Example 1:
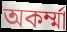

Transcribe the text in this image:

অকর্ম্মা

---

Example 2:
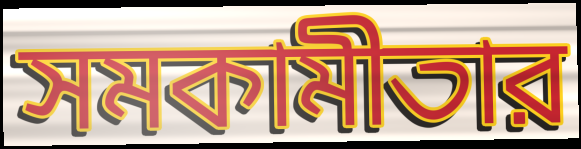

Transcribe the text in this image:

সমকামীতার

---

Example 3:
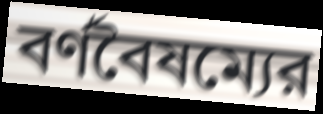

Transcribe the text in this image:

বর্ণবৈষম্যের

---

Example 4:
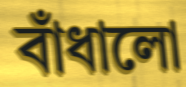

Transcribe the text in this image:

বাঁধালো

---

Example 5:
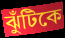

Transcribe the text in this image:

ঝুঁটিকে